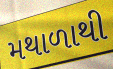
મથાળાથી